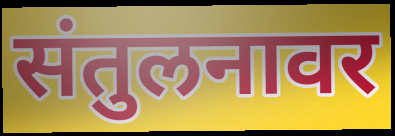
संतुलनावर